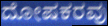
ದೋಷಕರವು